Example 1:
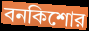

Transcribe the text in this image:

বনকিশোর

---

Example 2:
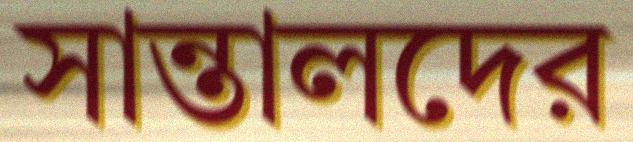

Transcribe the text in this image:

সান্তালদের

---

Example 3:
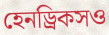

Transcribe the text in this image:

হেনড্রিকসও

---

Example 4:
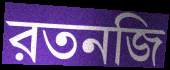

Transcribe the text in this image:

রতনজি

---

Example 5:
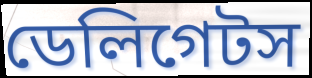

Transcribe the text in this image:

ডেলিগেটস